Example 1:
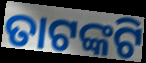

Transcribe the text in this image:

ତାଟଙ୍କଟି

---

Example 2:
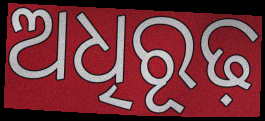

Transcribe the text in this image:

ଅଧିରୂଢ଼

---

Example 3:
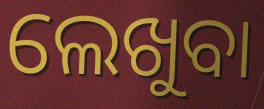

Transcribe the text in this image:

ଲେଖୁବା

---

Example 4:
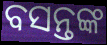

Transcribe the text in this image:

ବସନ୍ତଙ୍କ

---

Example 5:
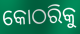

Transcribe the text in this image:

କୋଠରିକୁ